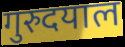
गुरुदयाल